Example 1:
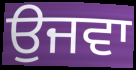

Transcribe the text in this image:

ਉਜਵਾ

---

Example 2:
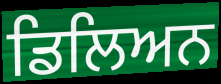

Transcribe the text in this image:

ਡਿਲਿਅਨ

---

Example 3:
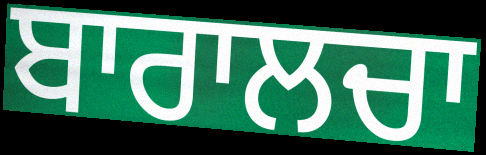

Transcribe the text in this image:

ਬਾਰਾਲਚਾ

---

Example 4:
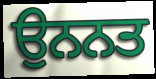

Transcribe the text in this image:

ਉਨਨਤ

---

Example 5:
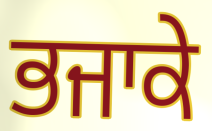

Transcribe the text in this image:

ਭਜਾਕੇ